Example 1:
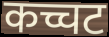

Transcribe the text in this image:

कच्चट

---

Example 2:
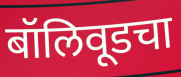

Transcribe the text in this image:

बॉलिवूडचा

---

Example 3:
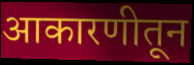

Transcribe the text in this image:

आकारणीतून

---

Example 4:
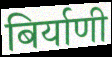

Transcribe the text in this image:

बिर्याणी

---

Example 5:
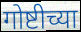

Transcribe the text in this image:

गोष्टीच्या